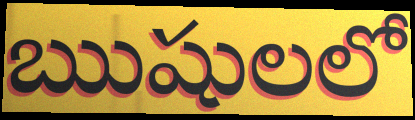
ఋషులలో